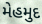
મેહમુદ